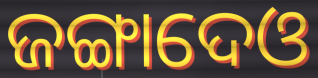
ଜଙ୍ଗାଦେଓ